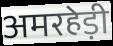
अमरहेड़ी